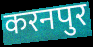
करनपुर